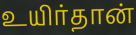
உயிர்தான்